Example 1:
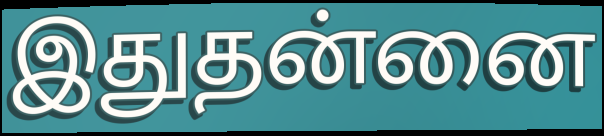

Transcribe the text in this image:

இதுதன்னை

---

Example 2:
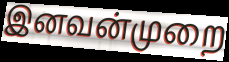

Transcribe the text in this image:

இனவன்முறை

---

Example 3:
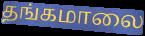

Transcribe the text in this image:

தங்கமாலை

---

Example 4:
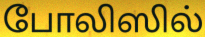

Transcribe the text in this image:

போலிஸில்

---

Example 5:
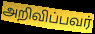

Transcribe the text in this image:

அறிவிப்பவர்